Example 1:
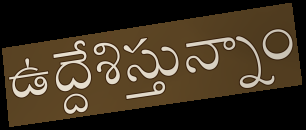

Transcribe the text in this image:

ఉద్దేశిస్తున్నాం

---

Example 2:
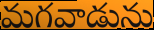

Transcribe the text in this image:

మగవాడును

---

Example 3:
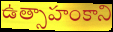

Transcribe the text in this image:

ఉత్సాహంకాని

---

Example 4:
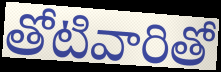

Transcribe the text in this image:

తోటివారితో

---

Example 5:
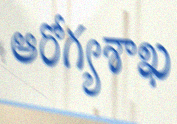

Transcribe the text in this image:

ఆరోగ్యశాఖ